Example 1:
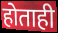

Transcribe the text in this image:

होताही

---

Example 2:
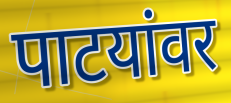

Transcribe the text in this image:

पाटयांवर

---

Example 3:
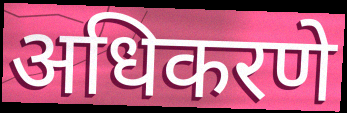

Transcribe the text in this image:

अधिकरणे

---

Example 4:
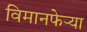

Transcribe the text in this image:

विमानफेऱ्या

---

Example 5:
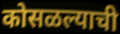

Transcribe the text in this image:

कोसळल्याची